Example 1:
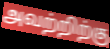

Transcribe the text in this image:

அவற்றிற்கு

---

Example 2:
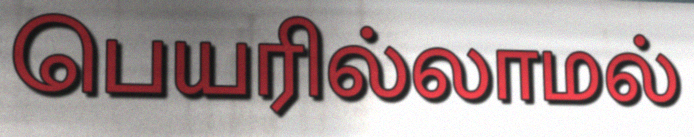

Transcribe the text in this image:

பெயரில்லாமல்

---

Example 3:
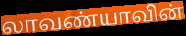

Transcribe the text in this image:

லாவண்யாவின்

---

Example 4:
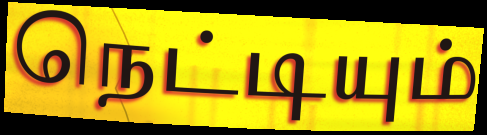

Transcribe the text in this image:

நெட்டியும்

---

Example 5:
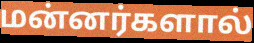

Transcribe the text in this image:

மன்னர்களால்